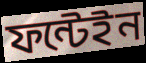
ফন্টেইন